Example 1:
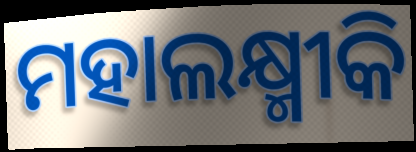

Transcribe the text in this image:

ମହାଲକ୍ଷ୍ମୀକି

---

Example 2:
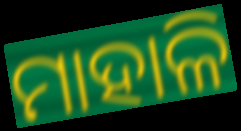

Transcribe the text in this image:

ମାହାଳି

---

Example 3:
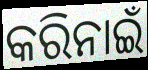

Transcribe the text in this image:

କରିନାଇଁ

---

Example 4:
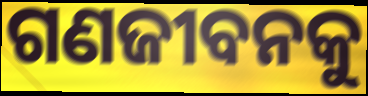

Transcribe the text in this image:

ଗଣଜୀବନକୁ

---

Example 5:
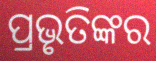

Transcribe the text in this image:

ପ୍ରଭୃତିଙ୍କର